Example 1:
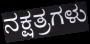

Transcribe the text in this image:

ನಕ್ಷತ್ರಗಳು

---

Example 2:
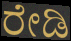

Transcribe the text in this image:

ರೇಡಿ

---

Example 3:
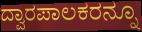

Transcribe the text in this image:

ದ್ವಾರಪಾಲಕರನ್ನೂ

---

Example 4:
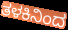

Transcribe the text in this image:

ತಳಕಿನಿಂದ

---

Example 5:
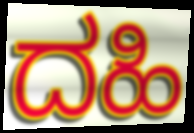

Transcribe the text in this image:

ದಹಿ